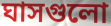
ঘাসগুলো